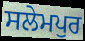
ਸਲੇਮਪੁਰ